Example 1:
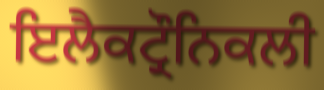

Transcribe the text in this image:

ਇਲੈਕਟ੍ਰੌਨਿਕਲੀ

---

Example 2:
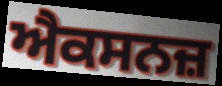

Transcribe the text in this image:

ਐਕਸਨਜ਼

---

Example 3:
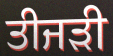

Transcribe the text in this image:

ਤੀਜੜੀ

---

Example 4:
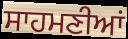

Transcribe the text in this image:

ਸਾਹਮਣੀਆਂ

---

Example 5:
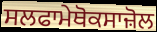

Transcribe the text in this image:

ਸਲਫਾਮੇਥੋਕਸਾਜ਼ੋਲ